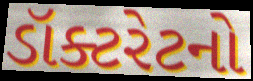
ડૉક્ટરેટનો